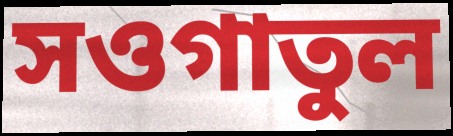
সওগাতুল